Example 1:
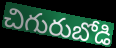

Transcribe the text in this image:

చిగురుబోడి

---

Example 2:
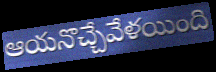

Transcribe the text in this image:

ఆయనొచ్చేవేళయింది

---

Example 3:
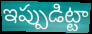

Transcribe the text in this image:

ఇప్పుడిట్టా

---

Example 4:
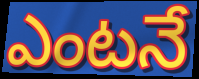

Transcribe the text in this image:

ఎంటనే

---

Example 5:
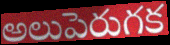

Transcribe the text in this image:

అలుపెరుగక